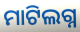
ମାଟିଲଗ୍ନ